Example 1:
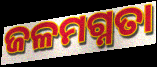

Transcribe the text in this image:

ଜଳମଗ୍ନତା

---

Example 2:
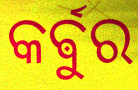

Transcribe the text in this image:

କର୍ଵୁର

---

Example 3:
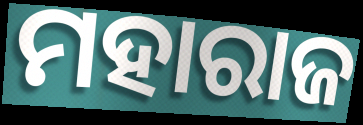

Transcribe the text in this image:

ମହାରାଜ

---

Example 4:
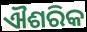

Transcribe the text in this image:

ଐଶରିକ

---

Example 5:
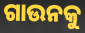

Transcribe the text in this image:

ଗାଉନକୁ